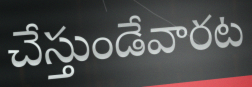
చేస్తుండేవారట